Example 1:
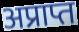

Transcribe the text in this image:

अप्राप्त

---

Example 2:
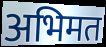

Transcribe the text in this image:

अभिमत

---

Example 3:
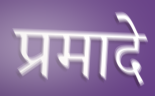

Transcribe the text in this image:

प्रमादे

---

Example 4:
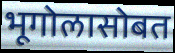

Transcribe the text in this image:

भूगोलासोबत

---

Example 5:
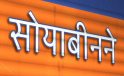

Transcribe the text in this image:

सोयाबीनने